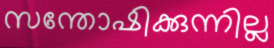
സന്തോഷിക്കുന്നില്ല